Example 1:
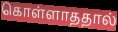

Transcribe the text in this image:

கொள்ளாததால்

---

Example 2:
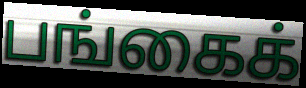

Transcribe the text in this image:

பங்கைக்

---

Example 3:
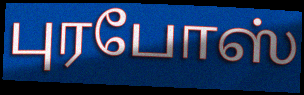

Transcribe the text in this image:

புரபோஸ்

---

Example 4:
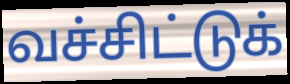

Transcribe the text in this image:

வச்சிட்டுக்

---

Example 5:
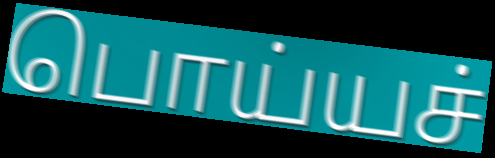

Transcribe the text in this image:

பொய்யச்